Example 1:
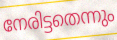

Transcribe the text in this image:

നേരിട്ടതെന്നും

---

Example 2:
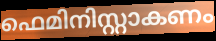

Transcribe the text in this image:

ഫെമിനിസ്റ്റാകണം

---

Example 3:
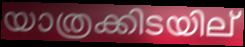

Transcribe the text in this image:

യാത്രക്കിടയില്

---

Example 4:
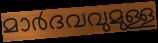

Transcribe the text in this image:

മാർദവവുമുള്ള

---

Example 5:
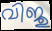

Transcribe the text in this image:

വിജു